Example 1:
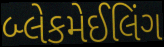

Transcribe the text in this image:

બ્લેકમેઈલિંગ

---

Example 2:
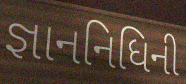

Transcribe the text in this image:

જ્ઞાનનિધિની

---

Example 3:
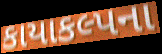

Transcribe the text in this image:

કાયાકલ્પના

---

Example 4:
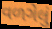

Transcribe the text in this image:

વળગેલું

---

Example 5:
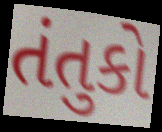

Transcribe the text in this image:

તંતુકો